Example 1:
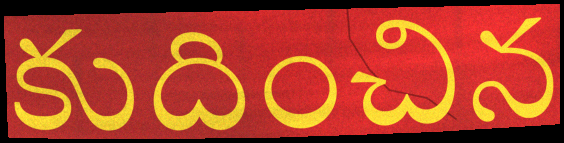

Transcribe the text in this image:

కుదించిన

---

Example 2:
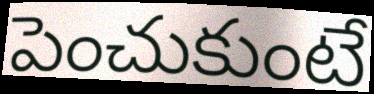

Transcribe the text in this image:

పెంచుకుంటే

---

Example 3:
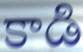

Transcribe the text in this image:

కాడి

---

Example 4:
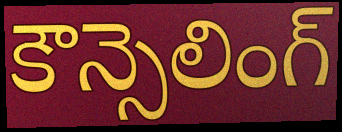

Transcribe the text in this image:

కౌన్సెలింగ్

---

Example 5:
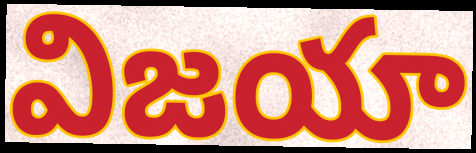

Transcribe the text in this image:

విజయా